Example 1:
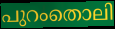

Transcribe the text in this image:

പുറംതൊലി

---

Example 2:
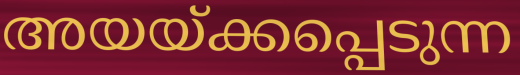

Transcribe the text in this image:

അയയ്ക്കപ്പെടുന്ന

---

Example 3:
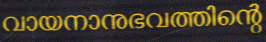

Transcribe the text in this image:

വായനാനുഭവത്തിന്റെ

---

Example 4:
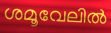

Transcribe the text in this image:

ശമൂവേലിൽ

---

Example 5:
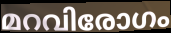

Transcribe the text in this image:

മറവിരോഗം